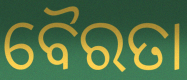
ବୈରତା